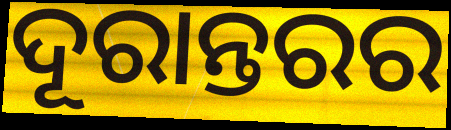
ଦୂରାନ୍ତରର